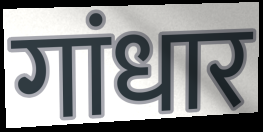
गांधार